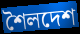
শৈলদেশ